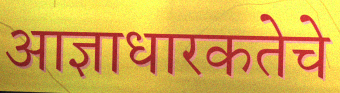
आज्ञाधारकतेचे